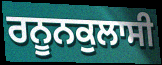
ਰਨੂਨਕੁਲਾਸੀ